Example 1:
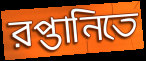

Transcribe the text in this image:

রপ্তানিতে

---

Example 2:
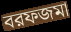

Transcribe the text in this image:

বরফজমা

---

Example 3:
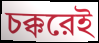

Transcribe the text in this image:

চক্করেই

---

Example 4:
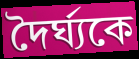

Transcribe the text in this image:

দৈর্ঘ্যকে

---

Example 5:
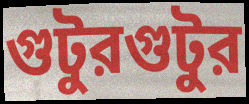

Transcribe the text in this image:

গুটুরগুটুর